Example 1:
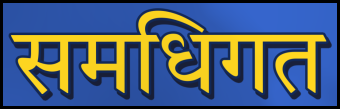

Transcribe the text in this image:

समधिगत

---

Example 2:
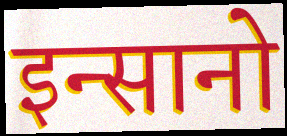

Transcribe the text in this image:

इन्सानो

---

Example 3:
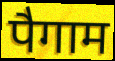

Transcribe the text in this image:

पैगाम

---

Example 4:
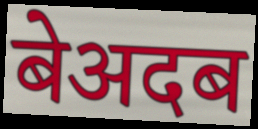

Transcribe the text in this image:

बेअदब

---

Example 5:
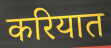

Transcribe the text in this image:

करियात